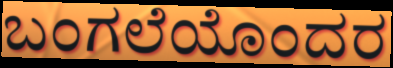
ಬಂಗಲೆಯೊಂದರ